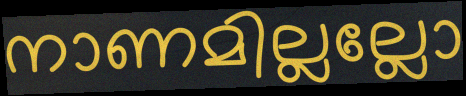
നാണമില്ലല്ലോ